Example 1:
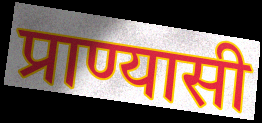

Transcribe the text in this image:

प्राण्यासी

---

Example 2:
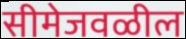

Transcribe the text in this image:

सीमेजवळील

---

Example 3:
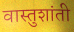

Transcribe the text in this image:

वास्तुशांती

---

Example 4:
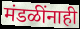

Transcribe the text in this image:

मंडळींनाही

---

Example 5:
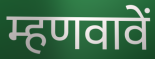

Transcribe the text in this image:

म्हणवावें